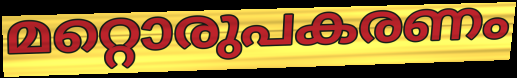
മറ്റൊരുപകരണം